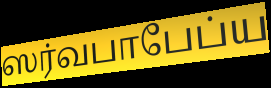
ஸர்வபாபேப்ய